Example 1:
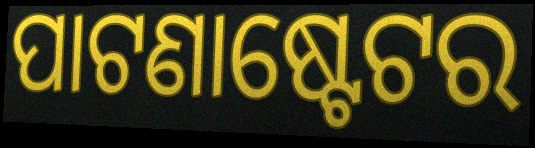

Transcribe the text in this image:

ପାଟଣାଷ୍ଟେଟର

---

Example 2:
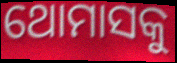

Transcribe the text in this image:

ଥୋମାସକୁ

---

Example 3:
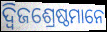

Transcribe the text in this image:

ଦ୍ୱିଜଶ୍ରେଷ୍ଠମାନେ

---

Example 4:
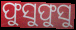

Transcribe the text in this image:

ଫୁସୁଫୁସୁ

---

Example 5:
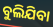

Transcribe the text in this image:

ବୁଲିଯିବା